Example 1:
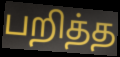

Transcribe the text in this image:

பறித்த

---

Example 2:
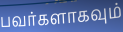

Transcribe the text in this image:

பவர்களாகவும்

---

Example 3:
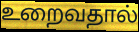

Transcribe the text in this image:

உறைவதால்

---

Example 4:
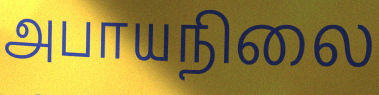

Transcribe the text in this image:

அபாயநிலை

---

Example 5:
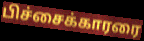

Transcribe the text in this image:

பிச்சைக்காரரை